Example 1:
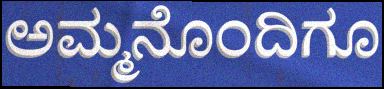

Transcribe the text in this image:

ಅಮ್ಮನೊಂದಿಗೂ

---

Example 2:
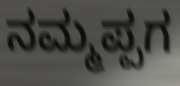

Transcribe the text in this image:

ನಮ್ಮಪ್ಪಗ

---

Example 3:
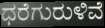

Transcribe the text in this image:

ಧರೆಗುರುಳಿವೆ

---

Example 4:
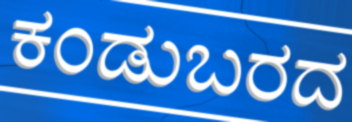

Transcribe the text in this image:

ಕಂಡುಬರದ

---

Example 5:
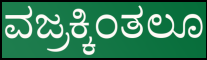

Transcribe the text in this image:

ವಜ್ರಕ್ಕಿಂತಲೂ